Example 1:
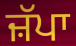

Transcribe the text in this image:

ਜ਼ੱਪਾ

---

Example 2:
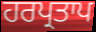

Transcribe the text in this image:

ਹਰਪ੍ਰਤਾਪ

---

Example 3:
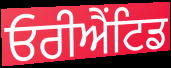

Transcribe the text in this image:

ਓਰੀਐਂਟਿਡ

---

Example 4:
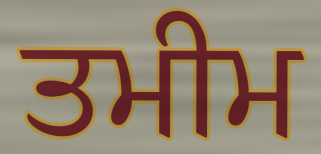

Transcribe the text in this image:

ਤਮੀਮ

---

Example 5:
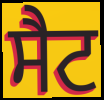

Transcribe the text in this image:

ਸੈਟ